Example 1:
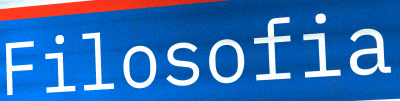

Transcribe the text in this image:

Filosofia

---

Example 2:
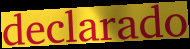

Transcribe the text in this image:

declarado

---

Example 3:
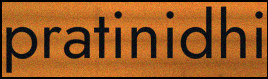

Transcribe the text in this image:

pratinidhi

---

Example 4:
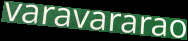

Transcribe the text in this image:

varavararao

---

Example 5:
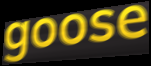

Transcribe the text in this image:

goose